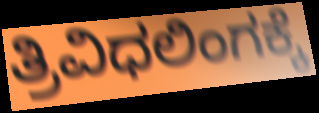
ತ್ರಿವಿಧಲಿಂಗಕ್ಕೆ